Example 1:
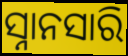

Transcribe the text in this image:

ସ୍ନାନସାରି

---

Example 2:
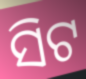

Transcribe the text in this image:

ସିଟ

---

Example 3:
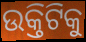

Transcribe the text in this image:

ଉକ୍ତିଟିକୁ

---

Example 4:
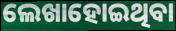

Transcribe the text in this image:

ଲେଖାହୋଇଥିବା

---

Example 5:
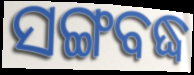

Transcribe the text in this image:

ସଙ୍ଗବଦ୍ଧ